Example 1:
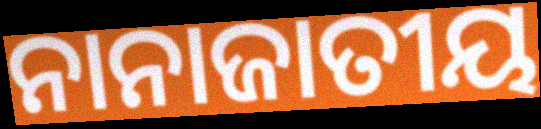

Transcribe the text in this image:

ନାନାଜାତୀୟ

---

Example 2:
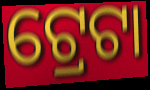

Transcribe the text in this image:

ଟ୍ରେଟା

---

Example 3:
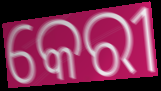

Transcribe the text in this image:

କେରୀ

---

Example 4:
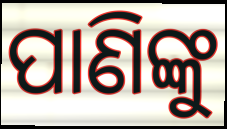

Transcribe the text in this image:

ପାଣିଙ୍କୁ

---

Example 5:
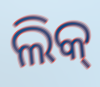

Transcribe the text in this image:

ଲିକ୍